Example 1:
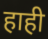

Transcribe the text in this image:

हाही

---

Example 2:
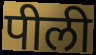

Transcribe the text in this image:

पीली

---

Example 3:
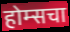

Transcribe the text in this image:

होम्सचा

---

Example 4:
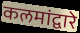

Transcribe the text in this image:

कलमांद्वारे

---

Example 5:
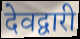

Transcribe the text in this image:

देवद्वारी